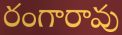
రంగారావు